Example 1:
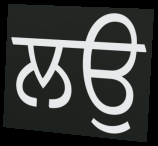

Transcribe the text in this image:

ਲਉ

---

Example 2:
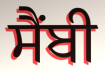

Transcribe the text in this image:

ਸੈਂਬੀ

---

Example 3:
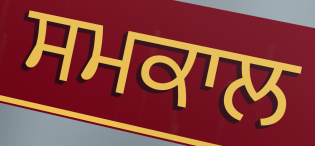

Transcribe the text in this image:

ਸਮਕਾਲ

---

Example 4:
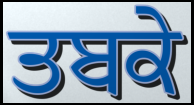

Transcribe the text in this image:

ਤਬਕੇ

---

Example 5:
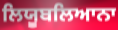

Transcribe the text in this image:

ਲਿਯੂਬਲਿਆਨਾ